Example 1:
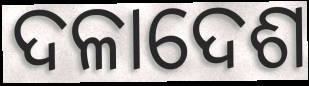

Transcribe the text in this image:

ଦଳାଦେଶ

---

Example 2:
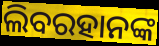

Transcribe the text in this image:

ଲିବରହାନଙ୍କ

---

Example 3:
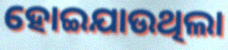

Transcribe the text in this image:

ହୋଇଯାଉଥିଲା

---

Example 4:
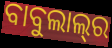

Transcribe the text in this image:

ବାବୁଲାଲ୍‍ର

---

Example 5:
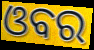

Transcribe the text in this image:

ଓବର